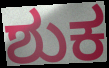
ಶುಕ